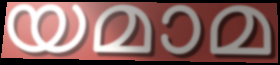
യമാമ